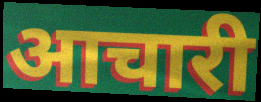
आचारी